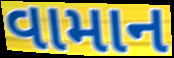
વામાન